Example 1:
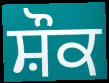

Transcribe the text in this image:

ਸ਼ੌਕ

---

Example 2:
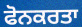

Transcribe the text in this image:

ਫੋਨਕਰਤਾ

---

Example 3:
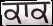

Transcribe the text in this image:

ਕਾਕ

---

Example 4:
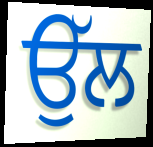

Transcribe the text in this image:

ਉੱਲ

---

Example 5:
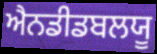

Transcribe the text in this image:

ਐਨਡੀਡਬਲਯੂ